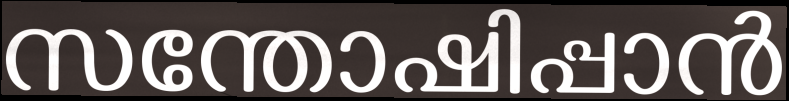
സന്തോഷിപ്പാൻ